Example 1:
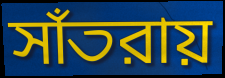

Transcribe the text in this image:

সাঁতরায়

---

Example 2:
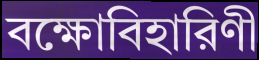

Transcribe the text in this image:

বক্ষোবিহারিণী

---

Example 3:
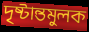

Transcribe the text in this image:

দৃষ্টান্তমুলক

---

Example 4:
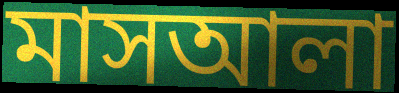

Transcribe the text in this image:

মাসআলা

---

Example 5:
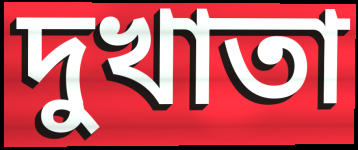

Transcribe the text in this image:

দুখাতা